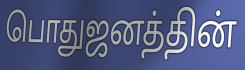
பொதுஜனத்தின்